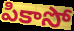
పికాసో